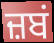
ਜ਼ਬਂ